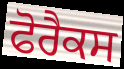
ਫੋਰੈਕਸ